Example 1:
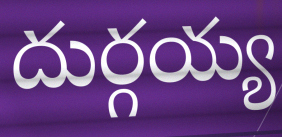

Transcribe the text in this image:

దుర్గయ్య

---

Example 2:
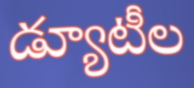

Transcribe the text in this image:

డ్యూటీల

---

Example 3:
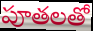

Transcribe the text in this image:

పూతలతో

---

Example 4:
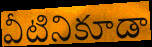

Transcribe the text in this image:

వీటినికూడా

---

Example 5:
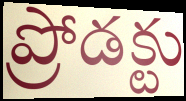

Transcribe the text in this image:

ప్రోడక్టు